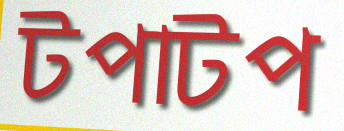
টপাটপ